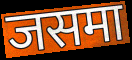
जसमा